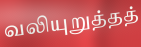
வலியுறுத்தத்